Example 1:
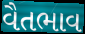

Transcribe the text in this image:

વૈતભાવ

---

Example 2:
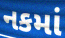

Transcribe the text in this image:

નકમાં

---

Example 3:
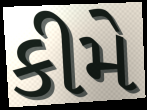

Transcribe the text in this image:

કીમે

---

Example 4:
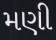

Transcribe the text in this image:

મણી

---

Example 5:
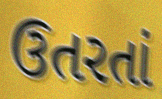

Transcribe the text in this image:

ઉતરતાં